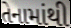
તેનામાંથી